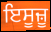
ਇਸੂਜ਼ੂ